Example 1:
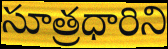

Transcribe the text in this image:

సూత్రధారిని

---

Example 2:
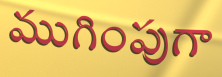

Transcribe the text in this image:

ముగింపుగా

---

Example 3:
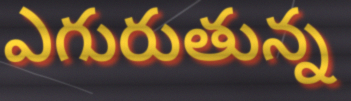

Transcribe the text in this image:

ఎగురుతున్న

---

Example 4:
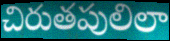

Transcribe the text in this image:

చిరుతపులిలా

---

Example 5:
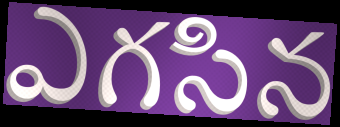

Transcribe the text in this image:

ఎగసిన